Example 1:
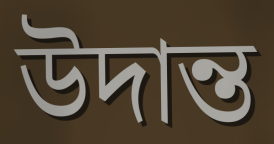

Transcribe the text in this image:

উদান্ত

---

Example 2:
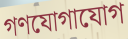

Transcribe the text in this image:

গণযোগাযোগ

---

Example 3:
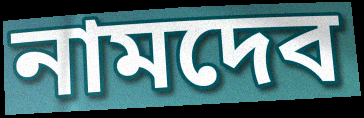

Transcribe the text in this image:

নামদেব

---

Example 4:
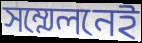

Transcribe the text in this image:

সম্মেলনেই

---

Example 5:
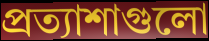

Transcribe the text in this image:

প্রত্যাশাগুলো